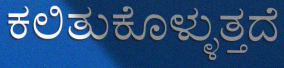
ಕಲಿತುಕೊಳ್ಳುತ್ತದೆ